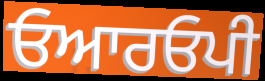
ਓਆਰਓਪੀ